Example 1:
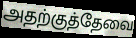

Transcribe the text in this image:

அதற்குத்தேவை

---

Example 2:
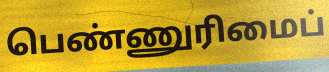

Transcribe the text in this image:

பெண்ணுரிமைப்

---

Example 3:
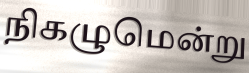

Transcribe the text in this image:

நிகழுமென்று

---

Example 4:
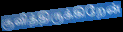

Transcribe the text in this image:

குவித்திருக்கிறேன்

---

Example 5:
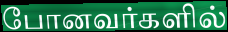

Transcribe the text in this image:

போனவர்களில்